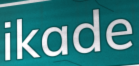
ikade